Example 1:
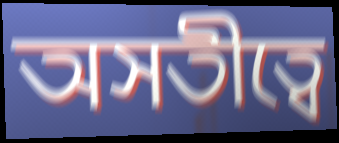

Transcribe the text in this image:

অসতীত্বে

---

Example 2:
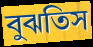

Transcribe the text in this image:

বুঝতিস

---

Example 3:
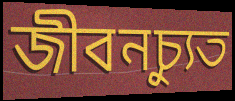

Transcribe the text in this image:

জীবনচ্যুত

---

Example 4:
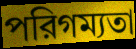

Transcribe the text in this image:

পরিগম্যতা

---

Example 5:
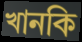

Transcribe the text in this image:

খানকি